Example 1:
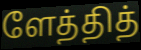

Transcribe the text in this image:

ளேத்தித்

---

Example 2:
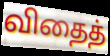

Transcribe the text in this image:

விதைத்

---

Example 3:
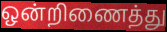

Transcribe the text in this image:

ஒன்றிணைத்து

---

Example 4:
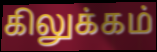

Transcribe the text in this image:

கிலுக்கம்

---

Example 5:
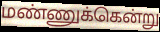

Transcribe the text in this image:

மண்ணுக்கென்று